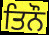
ਤਿਨੌ